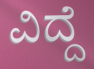
ವಿದ್ದೆ